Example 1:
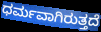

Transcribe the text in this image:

ಧರ್ಮವಾಗಿರುತ್ತದೆ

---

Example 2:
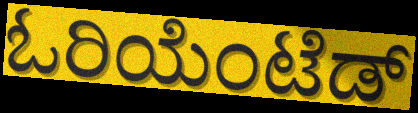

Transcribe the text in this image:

ಓರಿಯೆಂಟೆಡ್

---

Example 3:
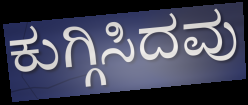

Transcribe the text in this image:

ಕುಗ್ಗಿಸಿದವು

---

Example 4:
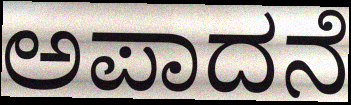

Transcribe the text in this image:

ಅಪಾದನೆ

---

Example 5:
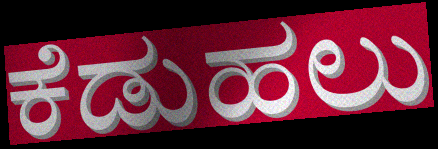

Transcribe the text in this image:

ಕೆಡುಹಲು